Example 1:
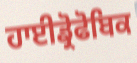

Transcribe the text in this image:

ਹਾਈਡ੍ਰੋਫੋਬਿਕ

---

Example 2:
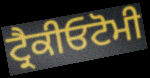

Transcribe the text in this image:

ਟ੍ਰੈਕੀਓਟੋਮੀ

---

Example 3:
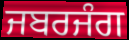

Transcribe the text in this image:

ਜਬਰਜੰਗ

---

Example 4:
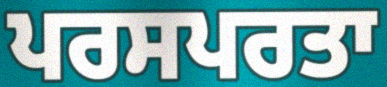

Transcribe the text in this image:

ਪਰਸਪਰਤਾ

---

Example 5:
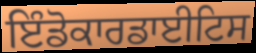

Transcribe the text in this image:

ਇੰਡੋਕਾਰਡਾਈਟਿਸ